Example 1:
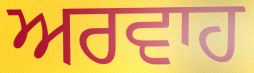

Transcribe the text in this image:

ਅਰਵਾਹ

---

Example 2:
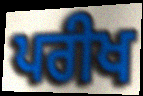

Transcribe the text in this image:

ਪਰੀਖ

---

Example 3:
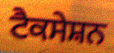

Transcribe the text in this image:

ਟੈਕਸੇਸ਼ਨ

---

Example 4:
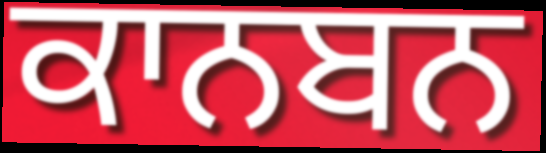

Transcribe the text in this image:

ਕਾਨਬਨ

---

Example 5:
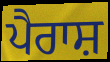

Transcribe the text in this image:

ਪੈਰਾਸ਼